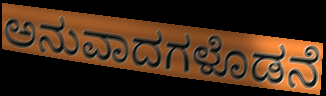
ಅನುವಾದಗಳೊಡನೆ